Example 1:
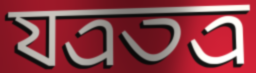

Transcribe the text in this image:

যত্রতত্র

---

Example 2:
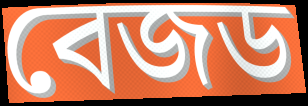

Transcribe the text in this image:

বেজড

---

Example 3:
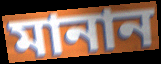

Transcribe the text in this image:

মানান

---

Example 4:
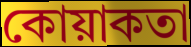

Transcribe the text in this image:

কোয়াকতা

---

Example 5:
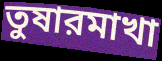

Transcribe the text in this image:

তুষারমাখা